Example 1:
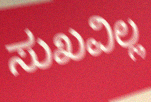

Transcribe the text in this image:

ಸುಖವಿಲ್ಲ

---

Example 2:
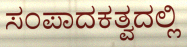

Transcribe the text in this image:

ಸಂಪಾದಕತ್ವದಲ್ಲಿ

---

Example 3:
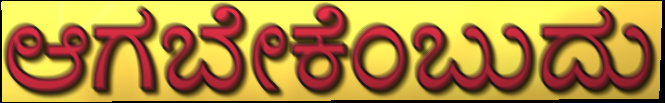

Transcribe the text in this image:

ಆಗಬೇಕೆಂಬುದು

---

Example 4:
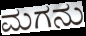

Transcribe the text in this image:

ಮಗನು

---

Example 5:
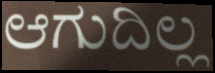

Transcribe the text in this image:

ಆಗುದಿಲ್ಲ